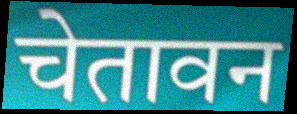
चेतावन